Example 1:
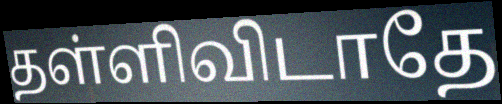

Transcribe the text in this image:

தள்ளிவிடாதே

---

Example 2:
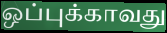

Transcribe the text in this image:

ஒப்புக்காவது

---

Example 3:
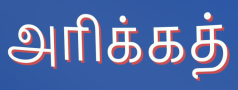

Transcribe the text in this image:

அரிக்கத்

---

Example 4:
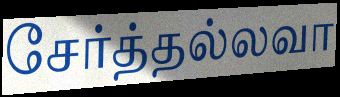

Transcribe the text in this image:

சேர்த்தல்லவா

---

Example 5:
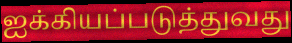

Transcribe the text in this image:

ஐக்கியப்படுத்துவது